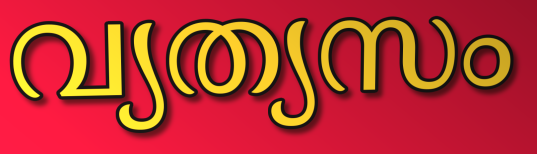
വ്യത്യസം